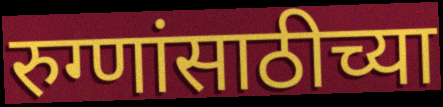
रुग्णांसाठीच्या